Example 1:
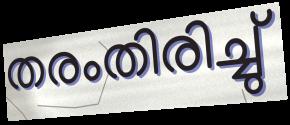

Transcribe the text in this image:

തരംതിരിച്ചു്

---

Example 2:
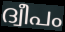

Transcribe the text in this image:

ദ്വീപം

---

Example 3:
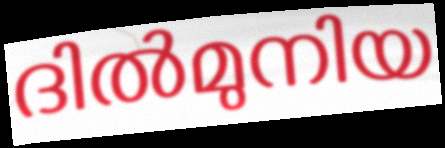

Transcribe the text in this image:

ദിൽമുനിയ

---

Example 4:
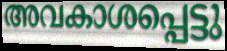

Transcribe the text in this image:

അവകാശപ്പെട്ടു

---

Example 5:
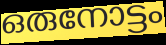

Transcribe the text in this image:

ഒരുനോട്ടം